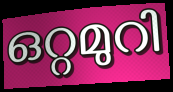
ഒറ്റമുറി